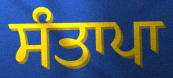
ਸੰਤਾਪਾ